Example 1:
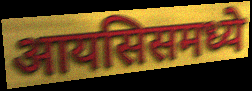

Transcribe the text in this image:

आयसिसमध्ये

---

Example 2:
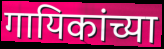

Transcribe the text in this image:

गायिकांच्या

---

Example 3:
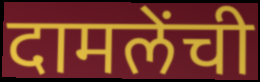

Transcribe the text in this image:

दामलेंची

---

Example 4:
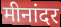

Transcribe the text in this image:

मीनांदर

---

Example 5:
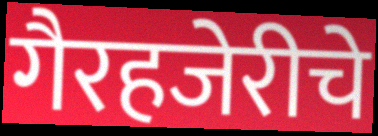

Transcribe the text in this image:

गैरहजेरीचे